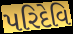
પરિદેવિ